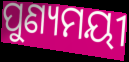
ପୁଣ୍ୟମୟୀ